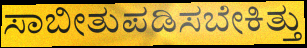
ಸಾಬೀತುಪಡಿಸಬೇಕಿತ್ತು